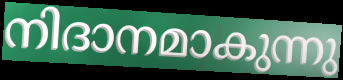
നിദാനമാകുന്നു